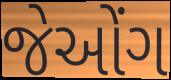
જેઓંગ